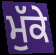
ਮੁੱਕੇ